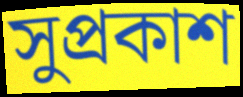
সুপ্রকাশ